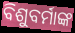
ବିଶୁବର୍ମାଙ୍କ